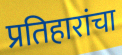
प्रतिहारांचा